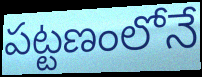
పట్టణంలోనే